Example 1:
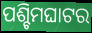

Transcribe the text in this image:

ପଶ୍ଚିମଘାଟର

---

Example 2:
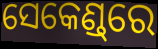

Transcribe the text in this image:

ସେକେଣ୍ଡ୍‌ରେ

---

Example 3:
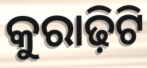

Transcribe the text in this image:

କୁରାଢ଼ିଟି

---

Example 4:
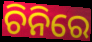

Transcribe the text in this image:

ଚିନିରେ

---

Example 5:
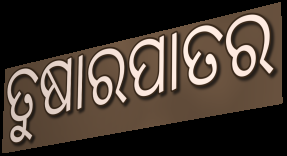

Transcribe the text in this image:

ତୁଷାରପାତର